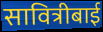
सावित्रीबाई